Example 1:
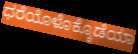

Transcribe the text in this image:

ಧರೆಯೊಳೊಕ್ಕೊಡೆಯಾ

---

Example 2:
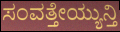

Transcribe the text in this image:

ಸಂವತ್ತೇಯ್ಯುನ್ತಿ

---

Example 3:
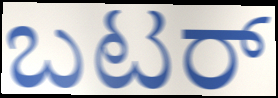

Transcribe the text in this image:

ಬಟರ್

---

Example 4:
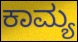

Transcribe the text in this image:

ಕಾಮ್ಯ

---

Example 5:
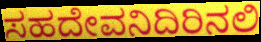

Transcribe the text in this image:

ಸಹದೇವನಿದಿರಿನಲಿ